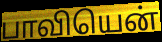
பாவியென்